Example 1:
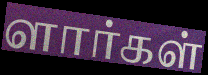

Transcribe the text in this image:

ளார்கள்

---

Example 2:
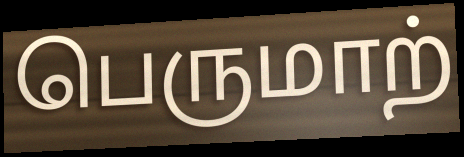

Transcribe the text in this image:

பெருமாற்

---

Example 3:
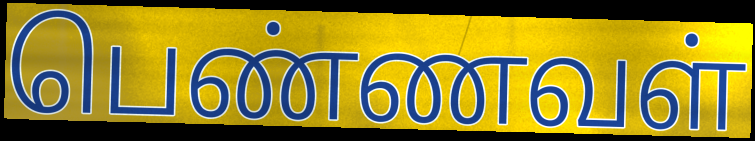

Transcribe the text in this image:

பெண்ணவள்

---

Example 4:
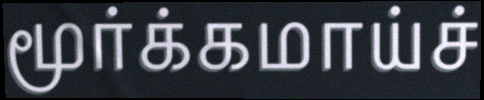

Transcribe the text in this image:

மூர்க்கமாய்ச்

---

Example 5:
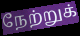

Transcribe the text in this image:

நேற்றுக்